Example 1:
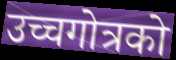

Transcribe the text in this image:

उच्चगोत्रको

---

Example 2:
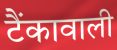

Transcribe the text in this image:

टैंकावाली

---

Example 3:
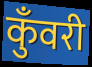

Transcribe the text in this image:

कुँवरी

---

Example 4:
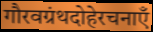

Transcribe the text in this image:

गौरवग्रंथदोहेरचनाएँ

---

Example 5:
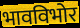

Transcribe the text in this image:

भावविभोर